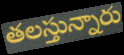
తలస్తున్నారు